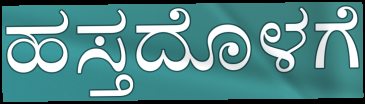
ಹಸ್ತದೊಳಗೆ